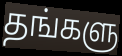
தங்களு